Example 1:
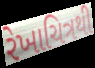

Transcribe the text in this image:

રેખાચિત્રથી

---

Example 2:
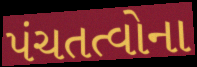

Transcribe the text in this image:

પંચતત્વોના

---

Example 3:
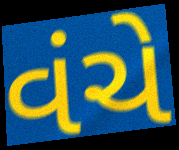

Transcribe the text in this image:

વંચે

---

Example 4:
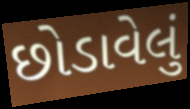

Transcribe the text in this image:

છોડાવેલું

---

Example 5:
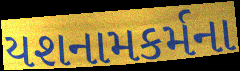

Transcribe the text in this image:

યશનામકર્મના